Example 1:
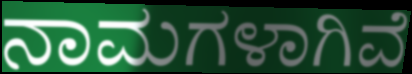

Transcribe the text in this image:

ನಾಮಗಳಾಗಿವೆ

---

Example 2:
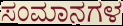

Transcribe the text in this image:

ಸಂಮಾನಗಳ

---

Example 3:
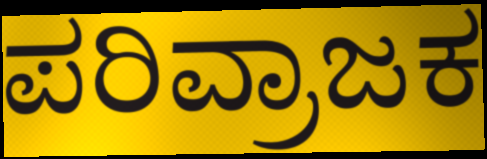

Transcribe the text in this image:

ಪರಿವ್ರಾಜಕ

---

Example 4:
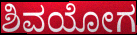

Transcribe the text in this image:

ಶಿವಯೋಗ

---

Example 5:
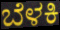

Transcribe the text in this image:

ಬೆಳಕಿ